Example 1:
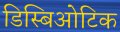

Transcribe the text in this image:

डिस्बिओटिक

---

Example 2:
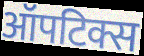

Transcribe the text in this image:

ऑपटिक्स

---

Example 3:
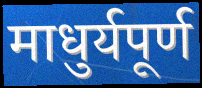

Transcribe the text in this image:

माधुर्यपूर्ण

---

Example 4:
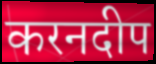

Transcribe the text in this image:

करनदीप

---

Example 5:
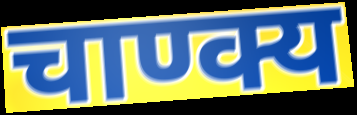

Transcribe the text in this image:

चाण्क्य